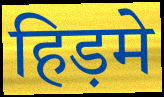
हिड़मे